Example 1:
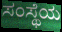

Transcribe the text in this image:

ಸಂಸ್ಥೆಯ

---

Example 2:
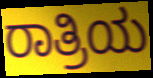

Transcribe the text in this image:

ರಾತ್ರಿಯ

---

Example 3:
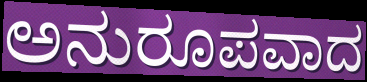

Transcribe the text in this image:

ಅನುರೂಪವಾದ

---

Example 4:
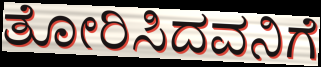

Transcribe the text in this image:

ತೋರಿಸಿದವನಿಗೆ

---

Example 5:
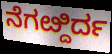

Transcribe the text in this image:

ನೆಗೞ್ದಿರ್ದ